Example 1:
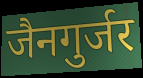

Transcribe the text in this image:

जैनगुर्जर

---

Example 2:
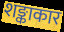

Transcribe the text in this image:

शङ्काकार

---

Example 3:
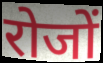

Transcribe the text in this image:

रोजों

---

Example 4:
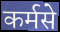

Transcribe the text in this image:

कर्मसे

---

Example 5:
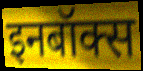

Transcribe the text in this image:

इनबॉक्स